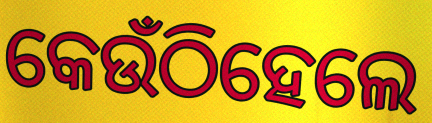
କେଉଁଠିହେଲେ